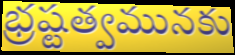
భ్రష్టత్వమునకు